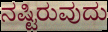
ನಷ್ಟಿರುವುದು